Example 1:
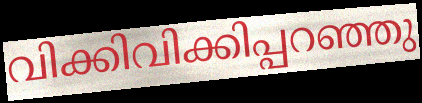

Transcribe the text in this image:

വിക്കിവിക്കിപ്പറഞ്ഞു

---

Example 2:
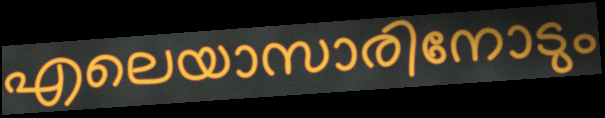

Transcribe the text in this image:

എലെയാസാരിനോടും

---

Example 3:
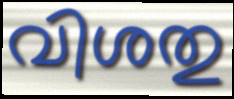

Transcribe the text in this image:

വിശതു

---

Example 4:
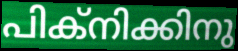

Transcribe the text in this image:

പിക്നിക്കിനു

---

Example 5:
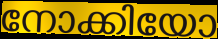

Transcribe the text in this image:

നോക്കിയോ